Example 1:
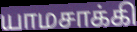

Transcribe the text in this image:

யாமசாக்கி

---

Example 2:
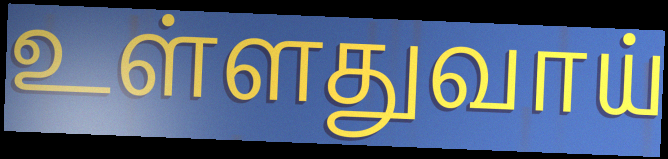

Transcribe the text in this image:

உள்ளதுவாய்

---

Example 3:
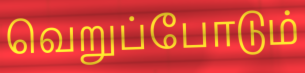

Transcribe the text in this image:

வெறுப்போடும்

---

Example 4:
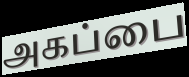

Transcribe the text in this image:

அகப்பை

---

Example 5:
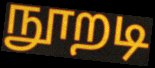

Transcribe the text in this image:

நூறடி